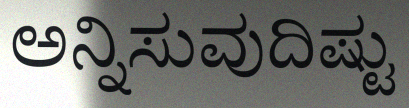
ಅನ್ನಿಸುವುದಿಷ್ಟು